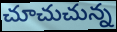
చూచుచున్న